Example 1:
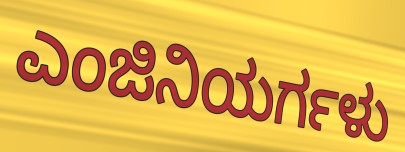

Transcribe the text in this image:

ಎಂಜಿನಿಯರ್ಗಳು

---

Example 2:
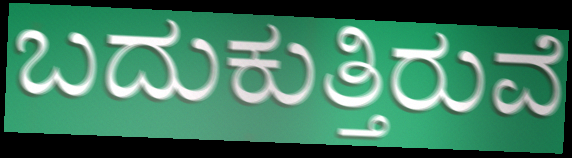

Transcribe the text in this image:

ಬದುಕುತ್ತಿರುವೆ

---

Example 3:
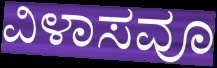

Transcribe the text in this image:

ವಿಳಾಸವೂ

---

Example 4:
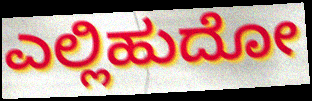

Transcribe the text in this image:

ಎಲ್ಲಿಹುದೋ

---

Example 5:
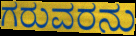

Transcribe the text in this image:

ಗರುವರನು